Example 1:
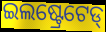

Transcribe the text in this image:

ଇଲଷ୍ଟ୍ରେଟେଡ୍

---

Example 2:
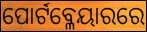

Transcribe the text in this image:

ପୋର୍ଟବ୍ଳେୟାରରେ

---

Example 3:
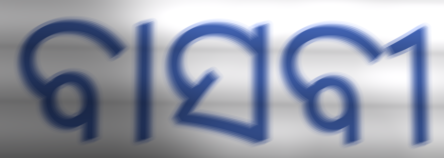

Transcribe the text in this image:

ବାସବୀ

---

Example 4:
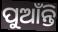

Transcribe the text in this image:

ପୁଆଁନ୍ତି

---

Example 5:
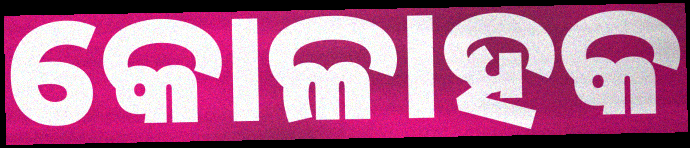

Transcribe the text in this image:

କୋଳାହକ